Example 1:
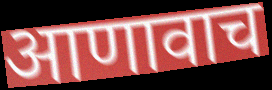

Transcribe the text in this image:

आणावाच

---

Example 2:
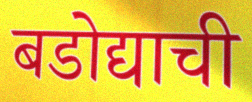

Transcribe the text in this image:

बडोद्याची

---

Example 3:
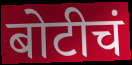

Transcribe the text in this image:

बोटीचं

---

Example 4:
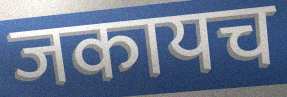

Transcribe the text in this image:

जकायच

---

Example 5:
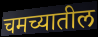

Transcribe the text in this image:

चमच्यातील